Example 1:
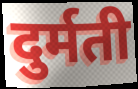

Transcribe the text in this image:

दुर्मती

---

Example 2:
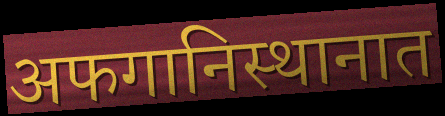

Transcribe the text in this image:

अफगानिस्थानात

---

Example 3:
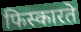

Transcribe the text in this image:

फिस्कारते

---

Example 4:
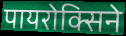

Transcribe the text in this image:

पायरोक्सिने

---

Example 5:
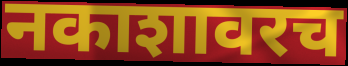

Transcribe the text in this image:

नकाशावरच